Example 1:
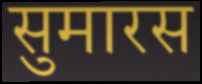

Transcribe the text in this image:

सुमारस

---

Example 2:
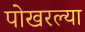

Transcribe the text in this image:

पोखरल्या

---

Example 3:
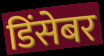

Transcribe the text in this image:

डिंसेबर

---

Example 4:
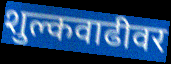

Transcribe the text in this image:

शुल्कवाढीवर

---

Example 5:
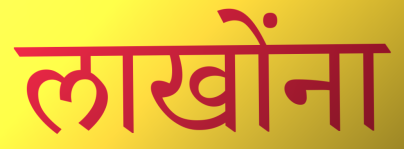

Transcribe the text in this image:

लाखोंना